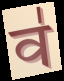
व॑